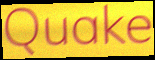
Quake